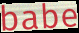
babe